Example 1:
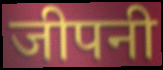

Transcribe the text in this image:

जीपनी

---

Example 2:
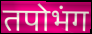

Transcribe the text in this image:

तपोभंग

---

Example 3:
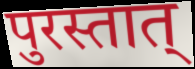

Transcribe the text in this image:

पुरस्तात्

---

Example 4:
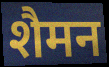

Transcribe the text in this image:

शैमन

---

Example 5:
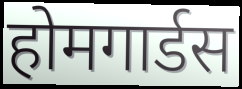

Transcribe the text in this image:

होमगार्डस